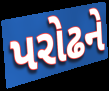
પરોઢને